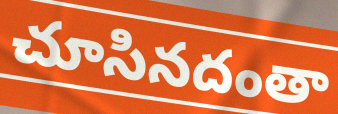
చూసినదంతా